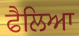
ਫੈਲਿਆ